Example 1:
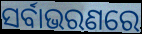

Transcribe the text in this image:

ସର୍ବାଭରଣରେ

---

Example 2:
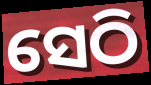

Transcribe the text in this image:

ସେଠି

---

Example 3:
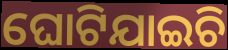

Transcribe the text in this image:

ଘୋଟିଯାଇଚି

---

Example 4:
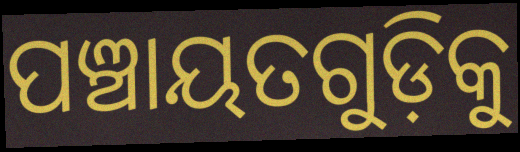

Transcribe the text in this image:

ପଞ୍ଚାୟତଗୁଡ଼ିକୁ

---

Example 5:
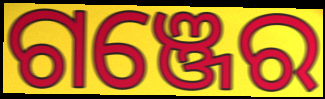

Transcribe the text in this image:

ଗଞ୍ଜେର